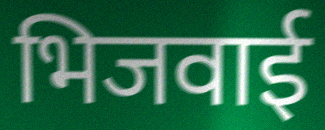
भिजवाई